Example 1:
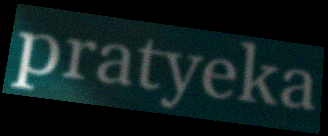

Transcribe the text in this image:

pratyeka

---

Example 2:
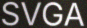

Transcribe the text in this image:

SVGA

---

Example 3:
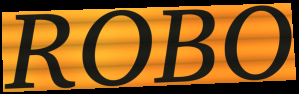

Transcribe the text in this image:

ROBO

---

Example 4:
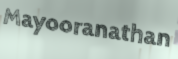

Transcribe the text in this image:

Mayooranathan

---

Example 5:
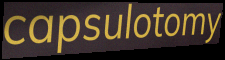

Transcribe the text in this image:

capsulotomy